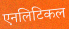
एनलिटिकल